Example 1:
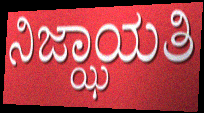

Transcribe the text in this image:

ನಿಜ್ಝಾಯತಿ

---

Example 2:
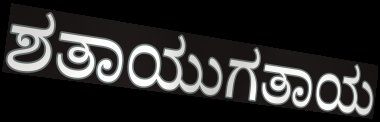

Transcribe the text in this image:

ಶತಾಯುಗತಾಯ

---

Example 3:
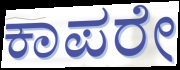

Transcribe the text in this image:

ಕಾಪರೇ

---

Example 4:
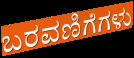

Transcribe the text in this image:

ಬರವಣಿಗೆಗಳು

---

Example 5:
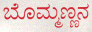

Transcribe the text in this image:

ಬೊಮ್ಮಣ್ಣನ